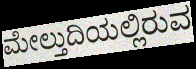
ಮೇಲ್ತುದಿಯಲ್ಲಿರುವ